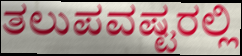
ತಲುಪವಷ್ಟರಲ್ಲಿ